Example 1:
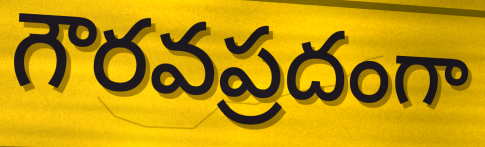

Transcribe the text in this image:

గౌరవప్రదంగా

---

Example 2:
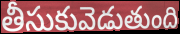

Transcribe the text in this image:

తీసుకువెడుతుంది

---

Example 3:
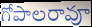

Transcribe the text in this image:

గోపాలరావూ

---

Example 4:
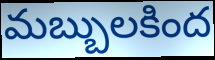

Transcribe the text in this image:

మబ్బులకింద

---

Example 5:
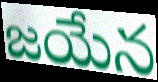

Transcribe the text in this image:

జయేన